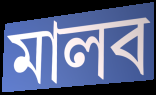
মালব